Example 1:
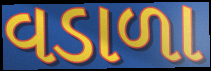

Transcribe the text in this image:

વડાળા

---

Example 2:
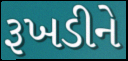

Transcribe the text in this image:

રૂખડીને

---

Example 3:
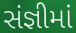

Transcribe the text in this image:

સંજ્ઞીમાં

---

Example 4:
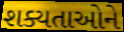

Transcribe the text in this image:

શક્યતાઓને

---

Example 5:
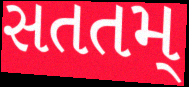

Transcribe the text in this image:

સતતમ્